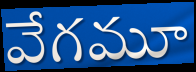
వేగమూ